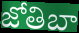
జోతిబా